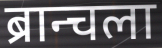
ब्रान्चला